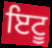
ਇਟੂ